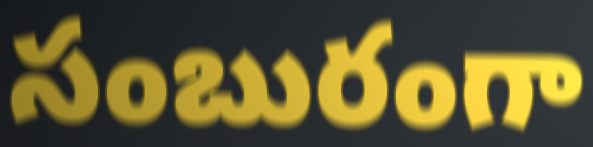
సంబురంగా